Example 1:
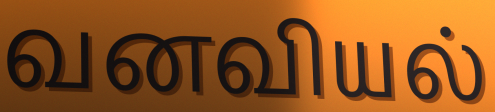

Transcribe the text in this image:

வனவியல்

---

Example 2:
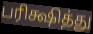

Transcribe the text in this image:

பரிக்ஷித்து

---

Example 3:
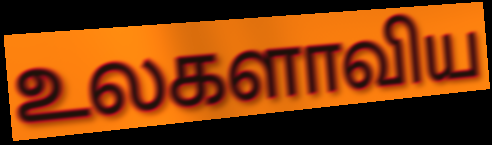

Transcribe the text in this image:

உலகளாவிய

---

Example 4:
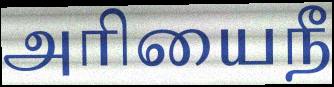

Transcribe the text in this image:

அரியைநீ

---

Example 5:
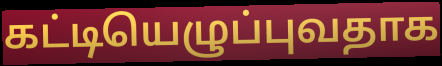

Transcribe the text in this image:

கட்டியெழுப்புவதாக